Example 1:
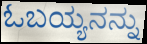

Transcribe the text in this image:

ಓಬಯ್ಯನನ್ನು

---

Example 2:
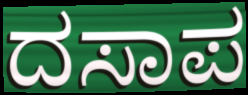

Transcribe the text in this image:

ದಸಾಪ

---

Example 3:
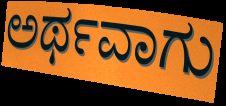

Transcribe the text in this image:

ಅರ್ಥವಾಗು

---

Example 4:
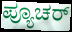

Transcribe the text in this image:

ಪ್ಯೂಚರ್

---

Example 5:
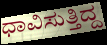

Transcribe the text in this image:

ಧಾವಿಸುತ್ತಿದ್ದ